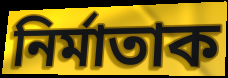
নিৰ্মাতাক